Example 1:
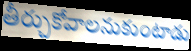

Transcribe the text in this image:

తీర్చుకోవాలనుకుంటాడు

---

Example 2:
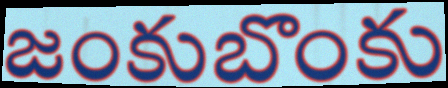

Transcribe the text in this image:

జంకుబొంకు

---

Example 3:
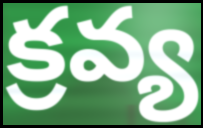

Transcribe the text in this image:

క్రవ్య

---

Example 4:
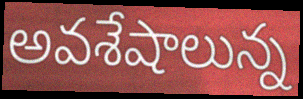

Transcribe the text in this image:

అవశేషాలున్న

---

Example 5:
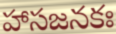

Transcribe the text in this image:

హాసజనకః